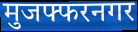
मुजफ्फरनगर